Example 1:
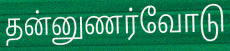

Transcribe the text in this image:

தன்னுணர்வோடு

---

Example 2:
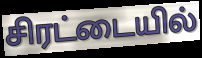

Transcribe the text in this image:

சிரட்டையில்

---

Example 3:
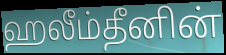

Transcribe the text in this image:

ஹலீம்தீனின்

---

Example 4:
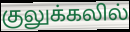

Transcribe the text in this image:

குலுக்கலில்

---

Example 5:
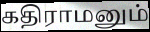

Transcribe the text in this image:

கதிராமனும்